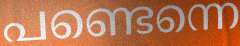
പണ്ടെന്നെ